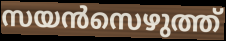
സയൻസെഴുത്ത്